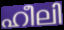
ഹീലി